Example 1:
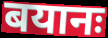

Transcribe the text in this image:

बयानः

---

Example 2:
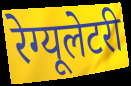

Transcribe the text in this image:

रेग्यूलेटरी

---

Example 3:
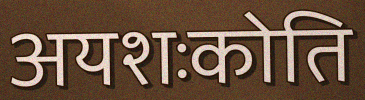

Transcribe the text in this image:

अयशःकोति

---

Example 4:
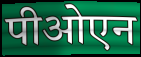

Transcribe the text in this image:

पीओएन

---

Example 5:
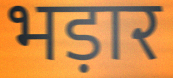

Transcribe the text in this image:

भड़ार